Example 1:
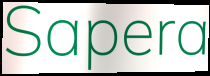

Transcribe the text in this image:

Sapera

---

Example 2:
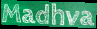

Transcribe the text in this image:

Madhva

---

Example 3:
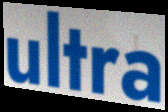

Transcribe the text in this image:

ultra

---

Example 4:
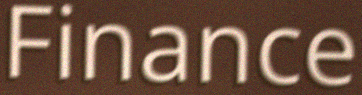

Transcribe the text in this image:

Finance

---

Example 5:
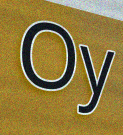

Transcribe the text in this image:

Oy